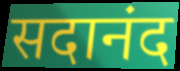
सदानंद